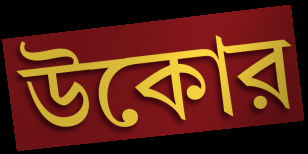
উকোর